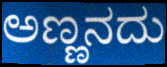
ಅಣ್ಣನದು